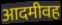
आदमीवह